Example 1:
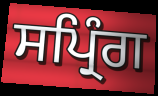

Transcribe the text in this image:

ਸਪ੍ਰਿੰਗ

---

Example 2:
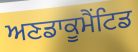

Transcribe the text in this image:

ਅਣਡਾਕੂਮੈਂਟਿਡ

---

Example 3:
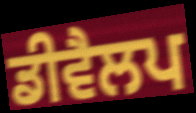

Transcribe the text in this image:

ਡੀਵੈਲਪ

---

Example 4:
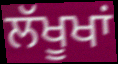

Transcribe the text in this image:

ਲੱਖੂਖਾਂ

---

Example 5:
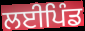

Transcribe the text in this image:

ਲਈਪਿੰਡ